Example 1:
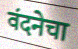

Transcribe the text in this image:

वंदनेचा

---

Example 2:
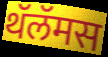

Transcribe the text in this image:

थॅलॅमस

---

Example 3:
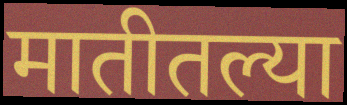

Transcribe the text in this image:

मातीतल्या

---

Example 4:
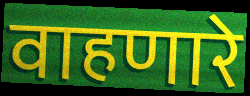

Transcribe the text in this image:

वाहणारे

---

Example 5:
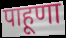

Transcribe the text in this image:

पाहूणा